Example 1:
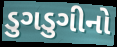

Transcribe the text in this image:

ડુગડુગીનો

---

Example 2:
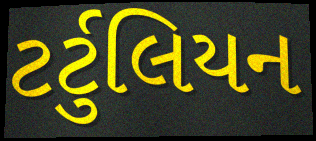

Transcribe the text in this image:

ટર્ટુલિયન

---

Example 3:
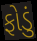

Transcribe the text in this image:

ફોડું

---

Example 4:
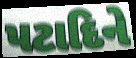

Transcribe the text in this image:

પટાદિને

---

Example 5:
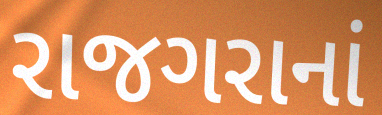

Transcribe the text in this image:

રાજગરાનાં